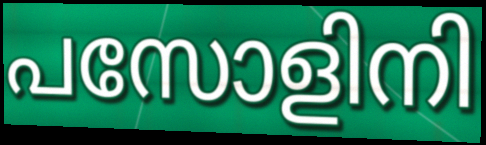
പസോളിനി